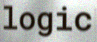
logic